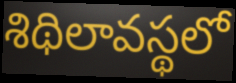
శిథిలావస్థలో